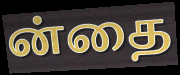
ன்தை